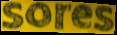
sores